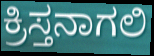
ಕ್ರಿಸ್ತನಾಗಲಿ